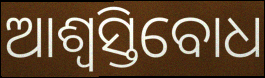
ଆଶ୍ଵସ୍ତିବୋଧ